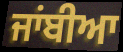
ਜਾਂਬੀਆ